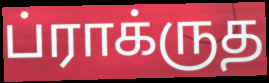
ப்ராக்ருத